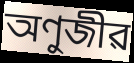
অণুজীৱ